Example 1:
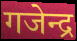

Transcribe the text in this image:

गजेन्‍द्र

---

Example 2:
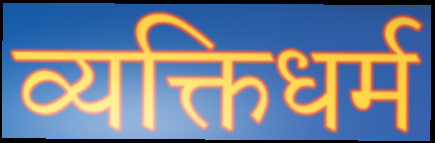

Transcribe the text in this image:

व्यक्तिधर्म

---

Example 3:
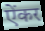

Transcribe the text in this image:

ऐंकर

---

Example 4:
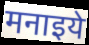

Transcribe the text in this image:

मनाइये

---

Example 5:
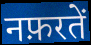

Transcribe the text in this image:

नफ़रतें